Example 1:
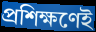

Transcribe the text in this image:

প্রশিক্ষণেই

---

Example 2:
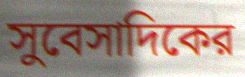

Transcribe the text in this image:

সুবেসাদিকের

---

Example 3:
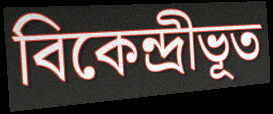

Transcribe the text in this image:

বিকেন্দ্রীভূত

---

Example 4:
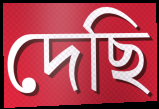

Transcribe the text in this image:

দেছি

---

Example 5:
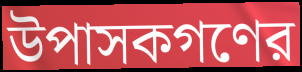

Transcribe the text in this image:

উপাসকগণের